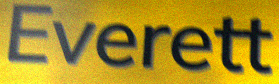
Everett